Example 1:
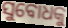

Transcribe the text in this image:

ସୁବୋଧକୁ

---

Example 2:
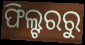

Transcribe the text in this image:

ଫିଲ୍ଟରରୁ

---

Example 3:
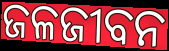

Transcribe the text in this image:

ଜଳଜୀବନ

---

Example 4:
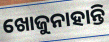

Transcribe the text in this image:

ଖୋଜୁନାହାନ୍ତି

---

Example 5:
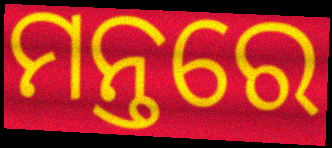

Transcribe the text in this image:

ମନ୍ତରେ